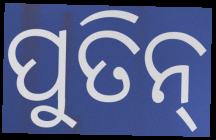
ପୁତିନ୍